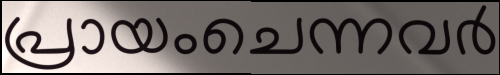
പ്രായംചെന്നവർ